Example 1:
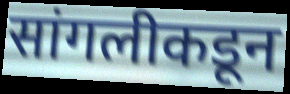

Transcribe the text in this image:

सांगलीकडून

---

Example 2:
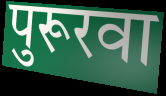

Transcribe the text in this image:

पुरूरवा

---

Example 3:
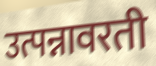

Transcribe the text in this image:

उत्पन्नावरती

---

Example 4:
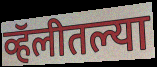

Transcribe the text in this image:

व्हॅलीतल्या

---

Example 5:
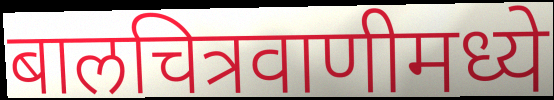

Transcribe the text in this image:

बालचित्रवाणीमध्ये